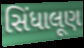
સિંધાલૂણ